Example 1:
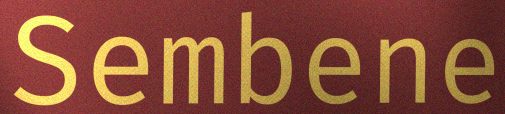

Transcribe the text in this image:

Sembene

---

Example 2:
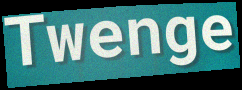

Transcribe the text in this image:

Twenge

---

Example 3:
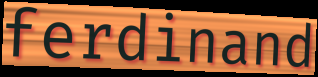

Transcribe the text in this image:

ferdinand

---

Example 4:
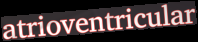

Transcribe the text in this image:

atrioventricular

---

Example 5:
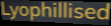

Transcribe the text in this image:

Lyophillised